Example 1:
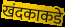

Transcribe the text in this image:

खंदकाकडे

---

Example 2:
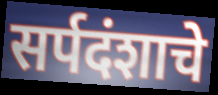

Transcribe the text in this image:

सर्पदंशाचे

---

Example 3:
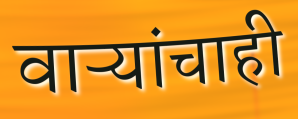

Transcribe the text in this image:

वाऱ्यांचाही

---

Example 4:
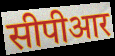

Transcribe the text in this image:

सीपीआर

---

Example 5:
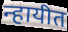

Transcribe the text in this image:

न्हायीत